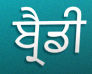
ਬ੍ਰੈਡੀ